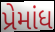
પ્રેમાંધ